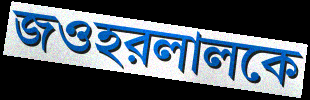
জওহরলালকে